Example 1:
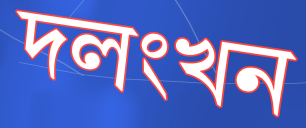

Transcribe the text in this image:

দলংখন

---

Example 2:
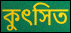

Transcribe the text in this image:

কুৎসিত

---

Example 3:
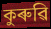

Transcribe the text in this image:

কুৰুৱি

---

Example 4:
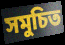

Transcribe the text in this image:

সমুচিত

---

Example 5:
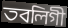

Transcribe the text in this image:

তবলিগী